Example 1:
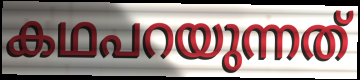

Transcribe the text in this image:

കഥപറയുന്നത്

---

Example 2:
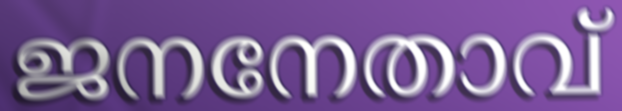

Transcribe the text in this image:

ജനനേതാവ്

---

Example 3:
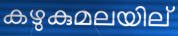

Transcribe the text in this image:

കഴുകുമലയില്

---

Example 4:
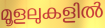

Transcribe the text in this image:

മൂളലുകളിൽ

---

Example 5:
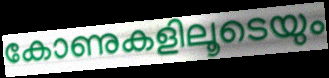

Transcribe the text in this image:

കോണുകളിലൂടെയും